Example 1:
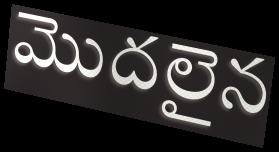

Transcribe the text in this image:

మొదలైన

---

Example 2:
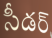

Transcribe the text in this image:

సీడర్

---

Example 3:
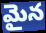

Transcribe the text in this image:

మైన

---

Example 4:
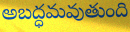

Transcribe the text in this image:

అబద్ధమవుతుంది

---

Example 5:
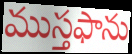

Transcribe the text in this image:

ముస్తఫాను